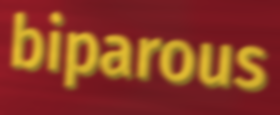
biparous